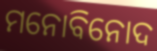
ମନୋବିନୋଦ